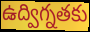
ఉద్విగ్నతకు